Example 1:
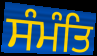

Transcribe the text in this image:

ਸੰਮੰਤਿ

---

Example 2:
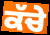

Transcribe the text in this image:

ਕੱਚੇ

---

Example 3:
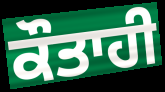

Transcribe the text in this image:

ਕੌਤਾਹੀ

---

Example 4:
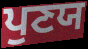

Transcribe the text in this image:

ਪੁਣਯ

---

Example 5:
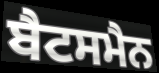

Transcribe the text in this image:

ਬੈਟਸਮੈਨ